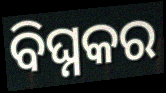
ବିଘ୍ନକର